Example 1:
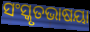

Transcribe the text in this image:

ସଂସ୍କୃତଭାଷୟା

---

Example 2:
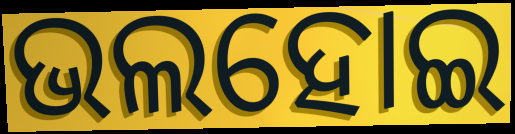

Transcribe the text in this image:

ଭଲହୋଇ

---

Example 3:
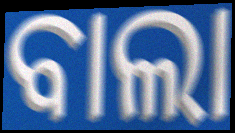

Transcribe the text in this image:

ବାଲା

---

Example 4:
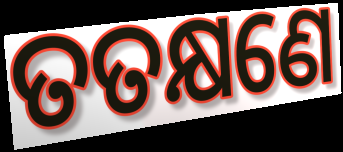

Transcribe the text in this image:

ତତକ୍ଷଣେ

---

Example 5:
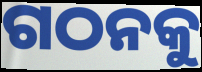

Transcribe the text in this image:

ଗଠନକୁ